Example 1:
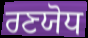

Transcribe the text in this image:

ਰਣਯੋਧ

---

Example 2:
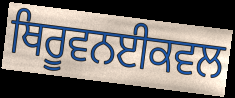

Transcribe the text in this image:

ਥਿਰੂਵਨਈਕਵਲ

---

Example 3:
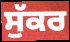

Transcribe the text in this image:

ਸੁੱਕਰ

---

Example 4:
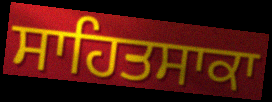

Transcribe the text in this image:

ਸਾਹਿਤਸਾਕਾ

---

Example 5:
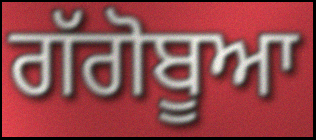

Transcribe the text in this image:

ਗੱਗੋਬੂਆ